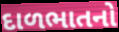
દાળભાતનો